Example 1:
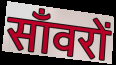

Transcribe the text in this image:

साँवरों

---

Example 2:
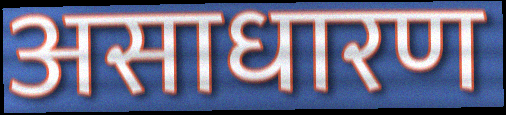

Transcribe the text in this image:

असाधारण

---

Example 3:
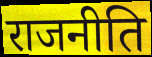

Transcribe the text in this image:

राजनीति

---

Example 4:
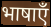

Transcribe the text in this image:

भाषाएँ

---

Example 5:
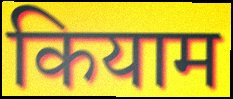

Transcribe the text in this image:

कियाम